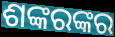
ଶଙ୍କରଙ୍କର